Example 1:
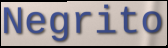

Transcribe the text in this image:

Negrito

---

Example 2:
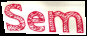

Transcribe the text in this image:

Sem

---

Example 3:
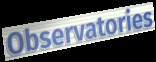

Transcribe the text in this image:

Observatories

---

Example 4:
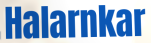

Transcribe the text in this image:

Halarnkar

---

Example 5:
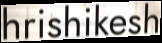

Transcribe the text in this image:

hrishikesh